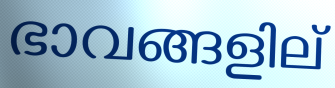
ഭാവങ്ങളില്